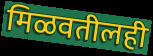
मिळवतीलही